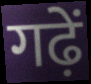
गढ़ें